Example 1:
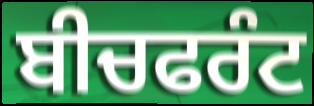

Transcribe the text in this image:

ਬੀਚਫਰੰਟ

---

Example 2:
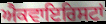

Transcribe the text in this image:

ਐਕਵਾਇਰਿਸਟਾਂ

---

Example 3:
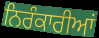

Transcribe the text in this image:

ਨਿਰੰਕਾਰੀਆਂ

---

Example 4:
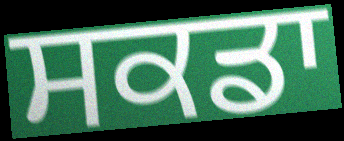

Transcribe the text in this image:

ਸਕਡਾ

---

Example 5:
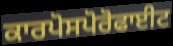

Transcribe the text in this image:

ਕਾਰਪੋਸਪੋਰੋਫਾਈਟ